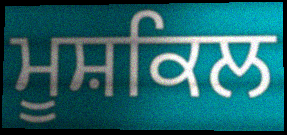
ਮੂਸ਼ਕਿਲ